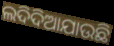
ଲଦିଦିଆଯାଉଛି